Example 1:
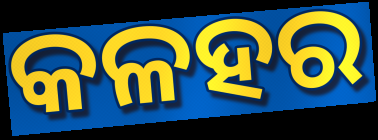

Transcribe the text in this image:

କଳହର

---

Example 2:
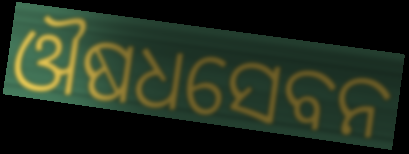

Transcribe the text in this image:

ଔଷଧସେବନ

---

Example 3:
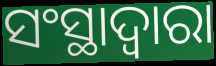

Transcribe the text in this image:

ସଂସ୍ଥାଦ୍ୱାରା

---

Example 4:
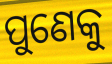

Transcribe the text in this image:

ପୁଣେକୁ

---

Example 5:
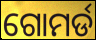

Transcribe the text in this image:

ଗୋମର୍ଡ